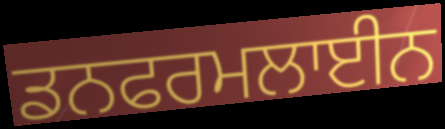
ਡਨਫਰਮਲਾਈਨ